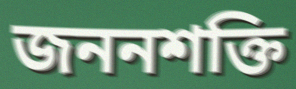
জননশক্তি